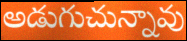
అడుగుచున్నావు